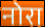
नोरा